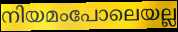
നിയമംപോലെയല്ല